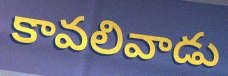
కావలివాడు